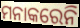
ମନାକରେନି